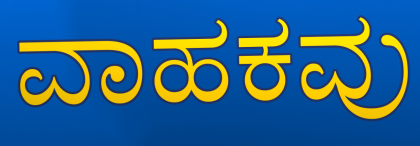
ವಾಹಕವು